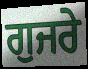
ਗੁਜਰੇ